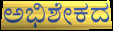
ಅಭಿಶೇಕದ